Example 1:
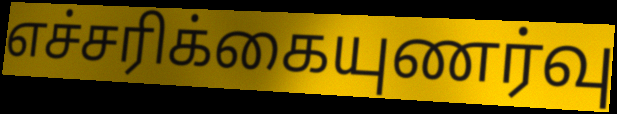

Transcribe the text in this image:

எச்சரிக்கையுணர்வு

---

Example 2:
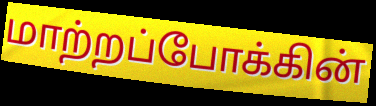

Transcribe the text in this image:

மாற்றப்போக்கின்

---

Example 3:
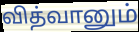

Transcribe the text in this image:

வித்வானும்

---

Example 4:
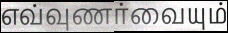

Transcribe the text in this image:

எவ்வுணர்வையும்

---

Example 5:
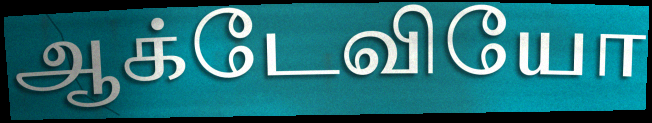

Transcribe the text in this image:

ஆக்டேவியோ